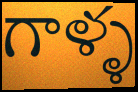
గాళ్ళ